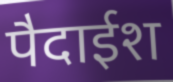
पैदाईश